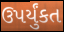
ઉપર્યુંકત